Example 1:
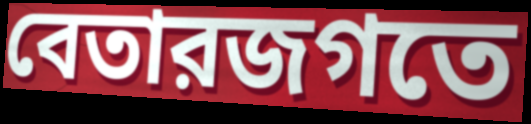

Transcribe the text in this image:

বেতারজগতে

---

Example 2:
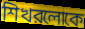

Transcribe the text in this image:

শিখরলোকে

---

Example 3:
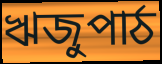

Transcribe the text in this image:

ঋজুপাঠ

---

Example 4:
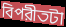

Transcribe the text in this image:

বিপরীতটা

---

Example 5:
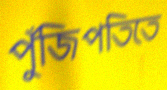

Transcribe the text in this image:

পুঁজিপতিতে